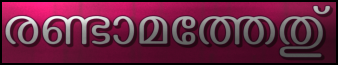
രണ്ടാമത്തേതു്